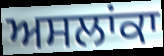
ਅਸਲਾਂਕਾ